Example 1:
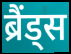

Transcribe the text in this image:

ब्रैंड्स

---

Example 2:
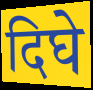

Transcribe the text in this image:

दिघे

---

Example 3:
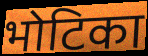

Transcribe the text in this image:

भोटिका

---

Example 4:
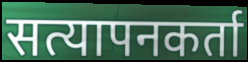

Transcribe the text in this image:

सत्यापनकर्ता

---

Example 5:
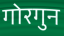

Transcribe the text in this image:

गोरगुन